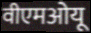
वीएमओयू